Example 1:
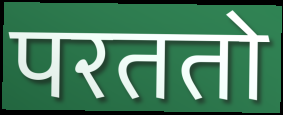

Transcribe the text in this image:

परततो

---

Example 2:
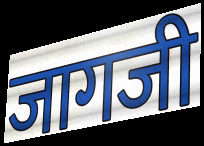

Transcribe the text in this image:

जागजी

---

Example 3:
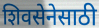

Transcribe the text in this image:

शिवसेनेसाठी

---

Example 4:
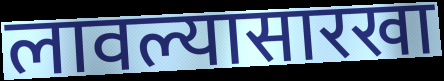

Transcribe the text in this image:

लावल्यासारखा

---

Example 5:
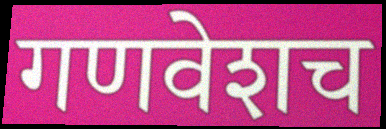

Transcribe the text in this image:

गणवेशच